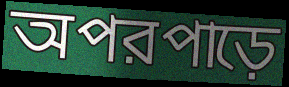
অপরপাড়ে